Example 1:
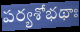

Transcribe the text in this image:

పర్యశోభథాః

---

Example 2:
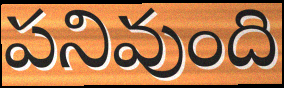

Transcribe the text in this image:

పనివుంది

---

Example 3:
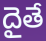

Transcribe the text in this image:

దైతే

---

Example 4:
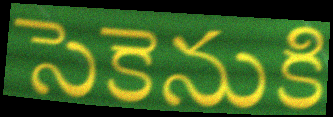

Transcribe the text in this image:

సెకెనుకి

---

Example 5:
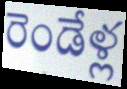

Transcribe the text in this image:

రెండేళ్ల